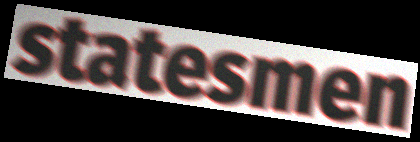
statesmen